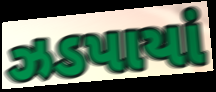
ઝડપાયાં